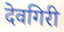
देवगिरी